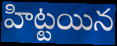
హిట్టయిన